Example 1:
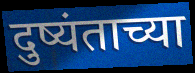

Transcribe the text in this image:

दुष्यंताच्या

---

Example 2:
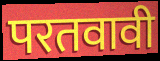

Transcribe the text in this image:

परतवावी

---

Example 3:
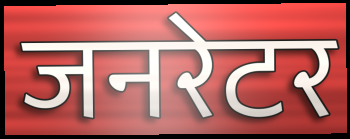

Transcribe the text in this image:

जनरेटर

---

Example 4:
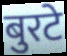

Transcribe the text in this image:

बुरटे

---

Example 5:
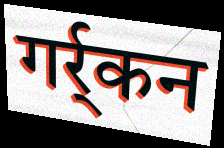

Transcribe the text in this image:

गर्र्कन